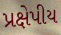
પ્રક્ષેપીય